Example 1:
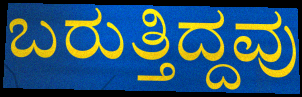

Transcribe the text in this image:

ಬರುತ್ತಿದ್ದವು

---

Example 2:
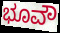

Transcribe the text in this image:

ಭೂವೌ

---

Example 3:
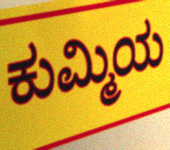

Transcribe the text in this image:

ಕುಮ್ಮಿಯ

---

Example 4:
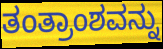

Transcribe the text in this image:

ತಂತ್ರಾಂಶವನ್ನು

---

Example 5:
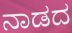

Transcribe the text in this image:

ನಾಡದ